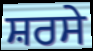
ਸ਼ਰਸੇ